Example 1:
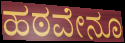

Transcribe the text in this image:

ಹಠವೇನೂ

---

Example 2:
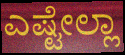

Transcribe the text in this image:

ಎಷ್ಟೇಲ್ಲಾ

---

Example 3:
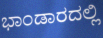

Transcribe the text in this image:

ಭಾಂಡಾರದಲ್ಲಿ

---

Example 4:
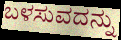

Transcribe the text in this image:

ಬಳಸುವದನ್ನು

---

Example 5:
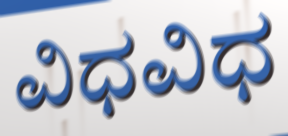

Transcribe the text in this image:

ವಿಧವಿಧ